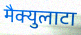
मैक्युलाटा